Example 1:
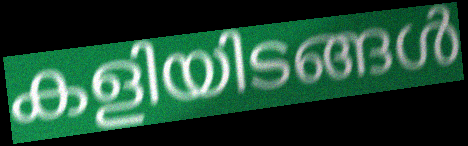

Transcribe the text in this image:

കളിയിടങ്ങൾ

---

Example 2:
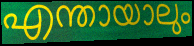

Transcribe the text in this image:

എന്തായാലും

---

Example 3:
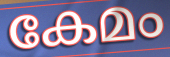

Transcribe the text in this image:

കേമം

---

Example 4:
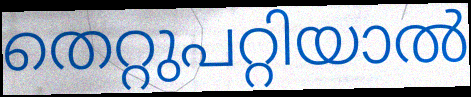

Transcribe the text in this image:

തെറ്റുപറ്റിയാൽ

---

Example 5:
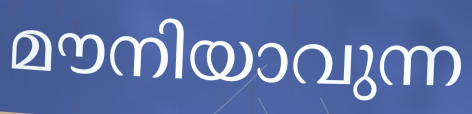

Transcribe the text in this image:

മൗനിയാവുന്ന